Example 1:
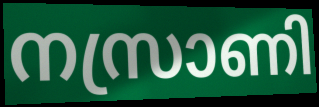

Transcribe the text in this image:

നസ്രാണി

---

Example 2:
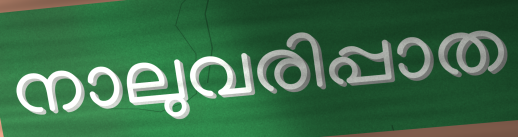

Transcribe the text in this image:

നാലുവരിപ്പാത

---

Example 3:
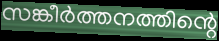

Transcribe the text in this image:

സങ്കീർത്തനത്തിന്റെ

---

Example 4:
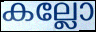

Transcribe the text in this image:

കല്ലോ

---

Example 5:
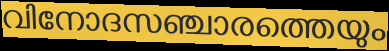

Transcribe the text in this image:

വിനോദസഞ്ചാരത്തെയും